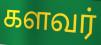
களவர்